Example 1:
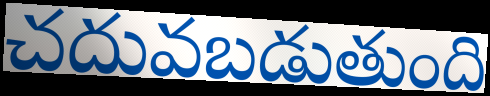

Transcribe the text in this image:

చదువబడుతుంది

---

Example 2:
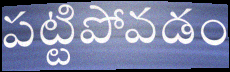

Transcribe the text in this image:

పట్టిపోవడం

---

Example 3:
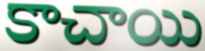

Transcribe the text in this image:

కాచాయి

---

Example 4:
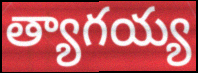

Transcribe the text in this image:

త్యాగయ్య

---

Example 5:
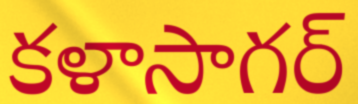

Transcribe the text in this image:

కళాసాగర్